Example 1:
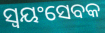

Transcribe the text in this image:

ସ୍ୱୟଂସେବକ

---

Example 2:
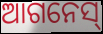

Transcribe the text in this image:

ଆଗନେସ୍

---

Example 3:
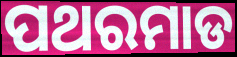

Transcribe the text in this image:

ପଥରମାଡ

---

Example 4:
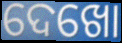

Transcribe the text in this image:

ଦେଖୋ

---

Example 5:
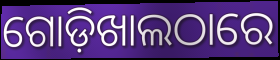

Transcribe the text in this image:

ଗୋଡ଼ିଖାଲଠାରେ